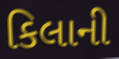
કિલાની